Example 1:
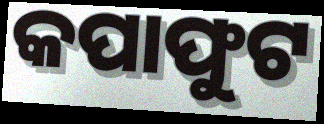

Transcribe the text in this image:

କପାଫୁଟ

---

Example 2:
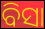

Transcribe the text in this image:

ବିସା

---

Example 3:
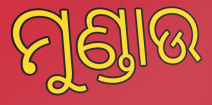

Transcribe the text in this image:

ମୁଣ୍ଡାଉ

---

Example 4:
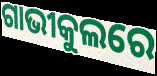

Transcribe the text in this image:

ଗାଭୀକୁଲରେ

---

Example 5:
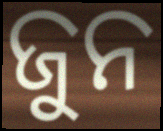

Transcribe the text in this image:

ଜୁନ